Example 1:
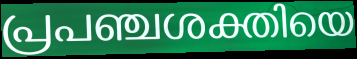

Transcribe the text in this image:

പ്രപഞ്ചശക്തിയെ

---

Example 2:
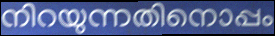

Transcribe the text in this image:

നിറയുന്നതിനൊപ്പം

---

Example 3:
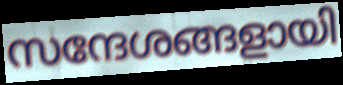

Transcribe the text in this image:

സന്ദേശങ്ങളായി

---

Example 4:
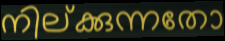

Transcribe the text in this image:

നില്ക്കുന്നതോ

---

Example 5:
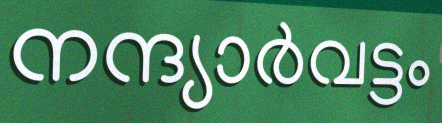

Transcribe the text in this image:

നന്ദ്യാർവട്ടം